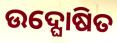
ଉଦ୍ଘୋଷିତ